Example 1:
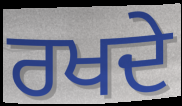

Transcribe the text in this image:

ਰਖਦੇ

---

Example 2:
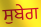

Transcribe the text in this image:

ਸੁਬੇਗ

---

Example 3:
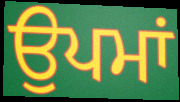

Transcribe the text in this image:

ਉਪਮਾਂ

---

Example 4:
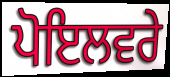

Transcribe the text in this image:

ਪੋਇਲਵਰੇ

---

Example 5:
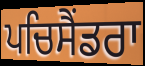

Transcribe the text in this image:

ਪਚਿਸੈਂਡਰਾ